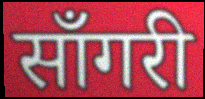
साँगरी